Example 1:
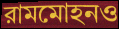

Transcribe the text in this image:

রামমোহনও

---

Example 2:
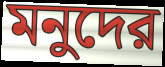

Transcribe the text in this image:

মনুদের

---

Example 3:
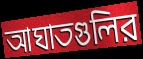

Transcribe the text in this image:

আঘাতগুলির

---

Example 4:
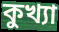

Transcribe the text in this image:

কুখ্যা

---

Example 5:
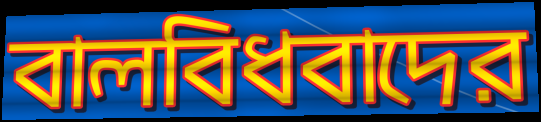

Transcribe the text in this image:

বালবিধবাদের